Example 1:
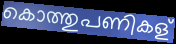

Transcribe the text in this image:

കൊത്തുപണികള്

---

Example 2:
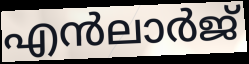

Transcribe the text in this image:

എൻലാർജ്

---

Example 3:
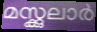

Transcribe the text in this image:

മസ്ക്കുലാർ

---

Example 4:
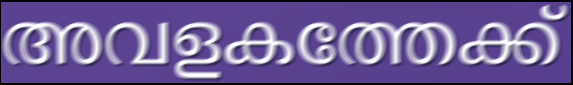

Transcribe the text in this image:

അവളകത്തേക്ക്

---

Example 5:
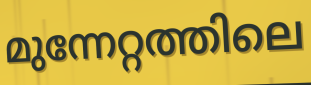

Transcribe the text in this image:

മുന്നേറ്റത്തിലെ